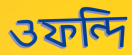
ওফন্দি